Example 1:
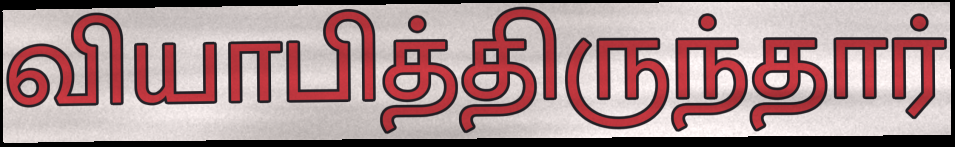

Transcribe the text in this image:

வியாபித்திருந்தார்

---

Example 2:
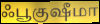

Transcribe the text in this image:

ஃபூகுஷீமா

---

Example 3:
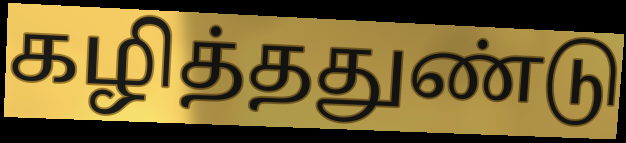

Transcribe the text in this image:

கழித்ததுண்டு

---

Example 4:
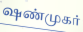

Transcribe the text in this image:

ஷண்முகர்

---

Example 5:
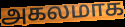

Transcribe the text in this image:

அகலமாக